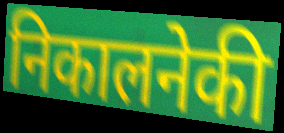
निकालनेकी